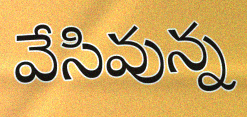
వేసివున్న